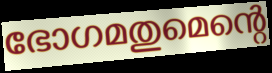
ഭോഗമതുമെന്റെ